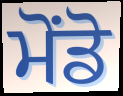
ਮੋਂਡੋ